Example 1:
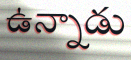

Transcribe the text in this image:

ఉన్నాడు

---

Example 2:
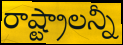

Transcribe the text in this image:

రాష్ట్రాలన్నీ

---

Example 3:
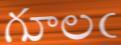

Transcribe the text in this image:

గూలఁ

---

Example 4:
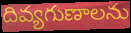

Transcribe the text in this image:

దివ్యగుణాలను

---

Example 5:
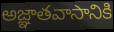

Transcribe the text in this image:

అజ్ఞాతవాసానికి